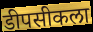
डीपसीकला